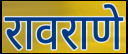
रावराणे